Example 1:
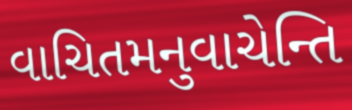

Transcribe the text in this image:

વાચિતમનુવાચેન્તિ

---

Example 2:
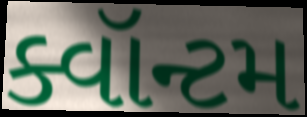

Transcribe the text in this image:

ક્વૉન્ટમ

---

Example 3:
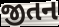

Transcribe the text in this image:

જીતન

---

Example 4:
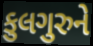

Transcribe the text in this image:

કુલગુરુને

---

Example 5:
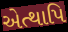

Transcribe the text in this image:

એત્થાપિ